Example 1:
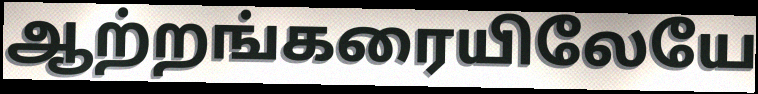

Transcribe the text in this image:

ஆற்றங்கரையிலேயே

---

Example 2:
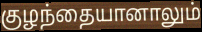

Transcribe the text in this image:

குழந்தையானாலும்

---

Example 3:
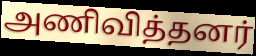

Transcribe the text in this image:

அணிவித்தனர்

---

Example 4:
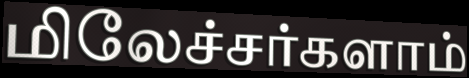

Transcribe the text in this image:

மிலேச்சர்களாம்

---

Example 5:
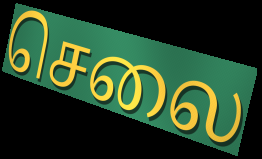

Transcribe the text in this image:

செலை